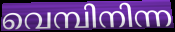
വെമ്പിനിന്ന